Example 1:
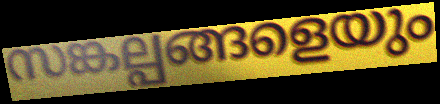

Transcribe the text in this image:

സങ്കല്പങ്ങളെയും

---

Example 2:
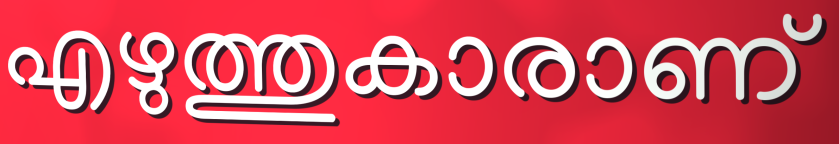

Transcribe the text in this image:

എഴുത്തുകാരാണ്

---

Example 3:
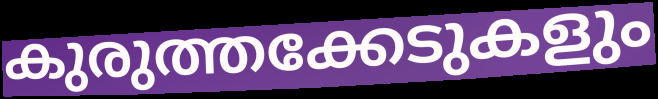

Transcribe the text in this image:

കുരുത്തക്കേടുകളും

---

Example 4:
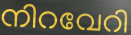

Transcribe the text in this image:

നിറവേറി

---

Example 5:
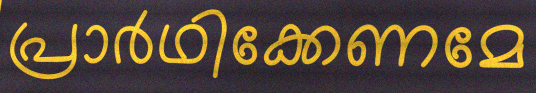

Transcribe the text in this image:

പ്രാർഥിക്കേണമേ